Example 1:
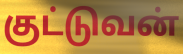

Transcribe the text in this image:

குட்டுவன்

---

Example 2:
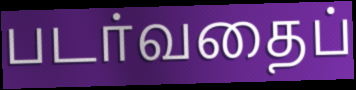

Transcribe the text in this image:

படர்வதைப்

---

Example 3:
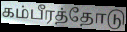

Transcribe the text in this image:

கம்பீரத்தோடு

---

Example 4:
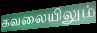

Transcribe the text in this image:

கவலையிலும்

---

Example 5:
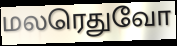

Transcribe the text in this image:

மலரெதுவோ